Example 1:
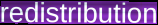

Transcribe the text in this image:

redistribution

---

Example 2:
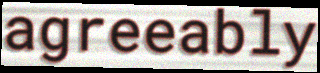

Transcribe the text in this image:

agreeably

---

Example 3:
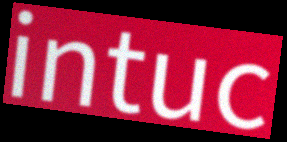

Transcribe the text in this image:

intuc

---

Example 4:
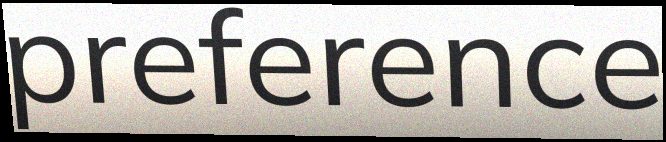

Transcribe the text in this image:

preference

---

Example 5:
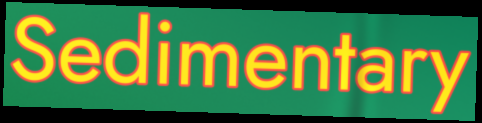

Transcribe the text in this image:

Sedimentary